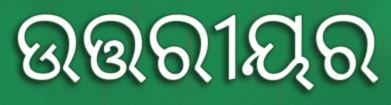
ଉତ୍ତରୀୟର